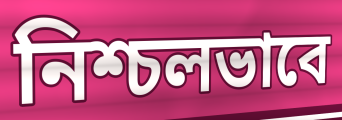
নিশ্চলভাবে